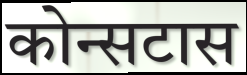
कोन्सटास